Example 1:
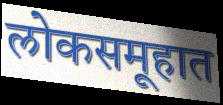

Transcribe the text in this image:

लोकसमूहात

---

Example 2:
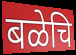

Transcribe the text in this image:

बळेचि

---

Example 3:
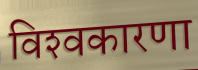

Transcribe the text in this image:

विश्वकारणा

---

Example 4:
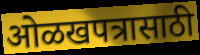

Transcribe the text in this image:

ओळखपत्रासाठी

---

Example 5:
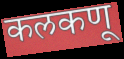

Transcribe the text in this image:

कलकणू